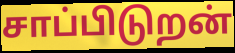
சாப்பிடுறன்